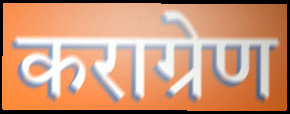
कराग्रेण